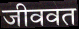
जीववत